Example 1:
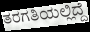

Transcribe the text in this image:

ತರಗತಿಯಲ್ಲಿದ್ದೆ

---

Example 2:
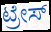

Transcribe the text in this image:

ಟ್ರೇಸ್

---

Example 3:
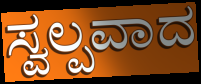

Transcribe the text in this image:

ಸ್ವಲ್ಪವಾದ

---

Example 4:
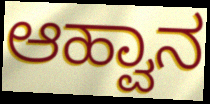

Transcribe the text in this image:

ಆಹ್ವಾನ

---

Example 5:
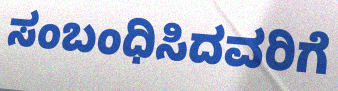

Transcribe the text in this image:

ಸಂಬಂಧಿಸಿದವರಿಗೆ